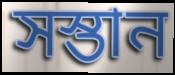
সস্তান